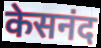
केसनंद